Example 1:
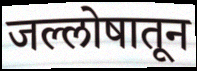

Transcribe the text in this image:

जल्लोषातून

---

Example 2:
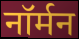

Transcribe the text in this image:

नॉर्मन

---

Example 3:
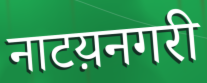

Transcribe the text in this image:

नाटय़नगरी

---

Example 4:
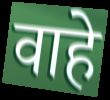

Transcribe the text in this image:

वाहे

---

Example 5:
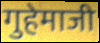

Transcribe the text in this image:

गुहेमाजी